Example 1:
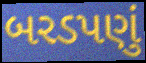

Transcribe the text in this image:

બરડપણું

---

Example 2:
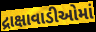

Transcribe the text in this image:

દ્રાક્ષાવાડીઓમાં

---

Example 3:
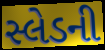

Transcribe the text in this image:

સ્લેડની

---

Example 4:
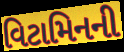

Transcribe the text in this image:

વિટામિનની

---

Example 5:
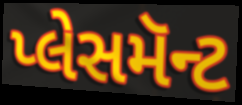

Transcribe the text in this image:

પ્લેસમૅન્ટ